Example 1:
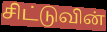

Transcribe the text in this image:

சிட்டுவின்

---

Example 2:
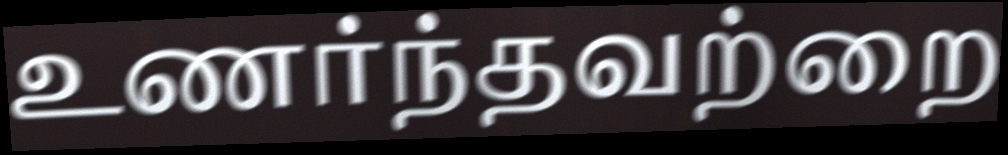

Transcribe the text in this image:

உணர்ந்தவற்றை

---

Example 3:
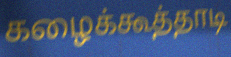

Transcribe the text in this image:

கழைக்கூத்தாடி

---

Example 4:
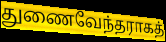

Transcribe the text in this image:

துணைவேந்தராகத்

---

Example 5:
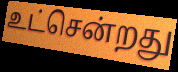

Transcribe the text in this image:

உட்சென்றது